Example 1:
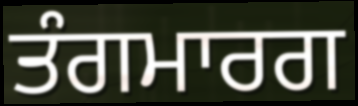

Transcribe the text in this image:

ਤੰਗਮਾਰਗ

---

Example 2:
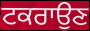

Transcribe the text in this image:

ਟਕਰਾਉਣ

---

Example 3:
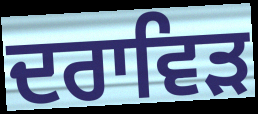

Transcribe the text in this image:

ਦਰਾਵਿੜ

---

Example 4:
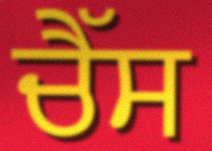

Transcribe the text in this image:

ਚੈੱਸ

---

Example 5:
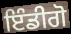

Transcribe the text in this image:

ਇੰਡੀਗੋ